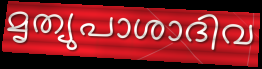
മൃത്യുപാശാദിവ